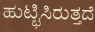
ಹುಟ್ಟಿಸಿರುತ್ತದೆ